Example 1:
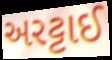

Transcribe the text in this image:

અરટ્ટાઈ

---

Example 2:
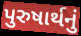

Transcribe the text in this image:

પુરુષાર્થનું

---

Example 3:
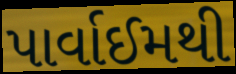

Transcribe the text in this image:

પાર્વાઈમથી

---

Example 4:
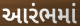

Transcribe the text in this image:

આરંભમાં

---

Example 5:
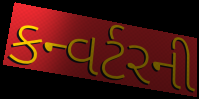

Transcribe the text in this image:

કન્વર્ટરની